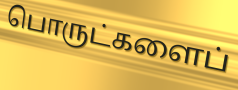
பொருட்களைப்